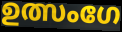
ഉത്സംഗേ